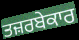
ਤਜ਼ਰਬੇਕਾਰ